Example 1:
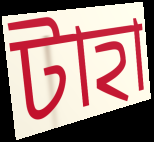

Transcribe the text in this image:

টাহা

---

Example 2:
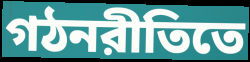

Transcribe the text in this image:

গঠনরীতিতে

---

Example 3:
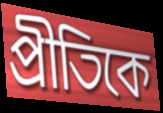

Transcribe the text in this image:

প্রীতিকে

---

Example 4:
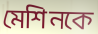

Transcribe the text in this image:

মেশিনকে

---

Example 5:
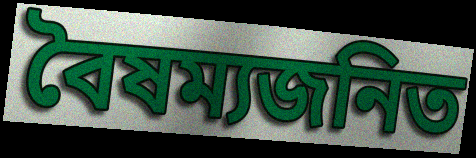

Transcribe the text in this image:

বৈষম্যজনিত